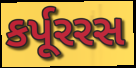
કર્પૂરરસ